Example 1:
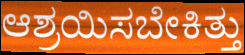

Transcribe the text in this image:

ಆಶ್ರಯಿಸಬೇಕಿತ್ತು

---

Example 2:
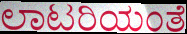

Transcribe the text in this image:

ಲಾಟರಿಯಂತೆ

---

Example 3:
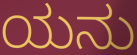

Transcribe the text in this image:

ಯನು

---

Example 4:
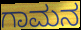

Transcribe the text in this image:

ಗಾಮನ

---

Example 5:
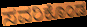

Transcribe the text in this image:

ಸವರಿಕೊಂಡ